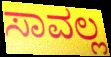
ಸಾವಲ್ಲ